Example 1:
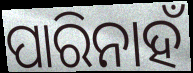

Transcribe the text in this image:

ପାରିନାହଁ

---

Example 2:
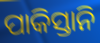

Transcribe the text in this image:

ପାକିସ୍ତାନି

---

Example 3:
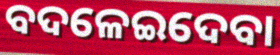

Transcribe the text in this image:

ବଦଳେଇଦେବା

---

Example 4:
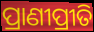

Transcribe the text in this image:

ପ୍ରାଣୀପ୍ରୀତି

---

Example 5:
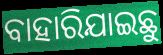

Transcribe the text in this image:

ବାହାରିଯାଇଛୁ